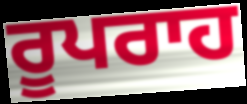
ਰੂਪਰਾਹ